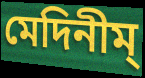
মেদিনীম্